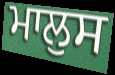
ਮਾਲੁਸ